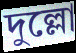
দুল্লো